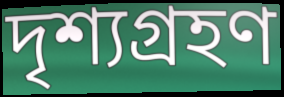
দৃশ্যগ্ৰহণ